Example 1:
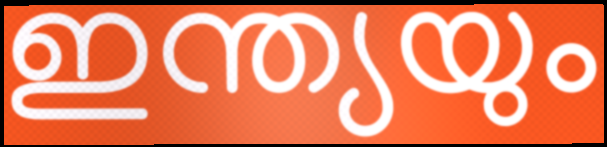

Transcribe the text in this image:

ഇന്ത്യയും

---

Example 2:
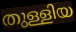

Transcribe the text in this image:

തുള്ളിയ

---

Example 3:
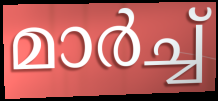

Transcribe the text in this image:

മാർച്ച്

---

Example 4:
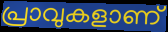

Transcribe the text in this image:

പ്രാവുകളാണ്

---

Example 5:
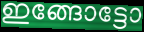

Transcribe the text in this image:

ഇങ്ങോട്ടോ